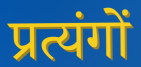
प्रत्यंगों